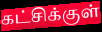
கட்சிக்குள்